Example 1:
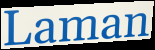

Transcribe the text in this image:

Laman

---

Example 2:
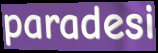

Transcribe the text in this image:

paradesi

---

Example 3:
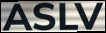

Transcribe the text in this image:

ASLV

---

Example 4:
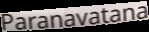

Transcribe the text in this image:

Paranavatana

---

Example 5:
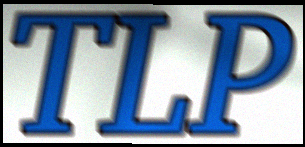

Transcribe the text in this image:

TLP